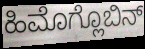
ಹಿಮೊಗ್ಲೊಬಿನ್